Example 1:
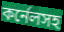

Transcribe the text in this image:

কর্নেলসহ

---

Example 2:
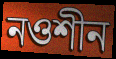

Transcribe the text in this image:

নওশীন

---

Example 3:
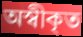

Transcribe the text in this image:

অস্বীকৃত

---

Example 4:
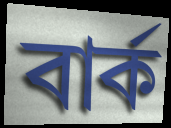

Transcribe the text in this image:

বার্ক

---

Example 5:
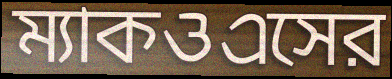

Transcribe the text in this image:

ম্যাকওএসের